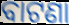
ବାଟଣା